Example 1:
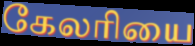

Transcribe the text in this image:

கேலரியை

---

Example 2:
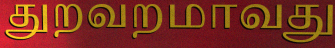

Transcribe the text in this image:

துறவறமாவது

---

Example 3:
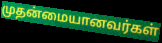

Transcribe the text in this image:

முதன்மையானவர்கள்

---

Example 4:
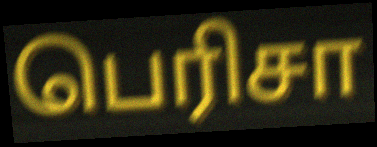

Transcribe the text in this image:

பெரிசா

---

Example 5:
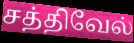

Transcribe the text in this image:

சத்திவேல்